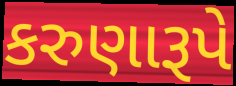
કરુણારૂપે